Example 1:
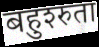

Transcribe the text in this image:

बहुश्रुता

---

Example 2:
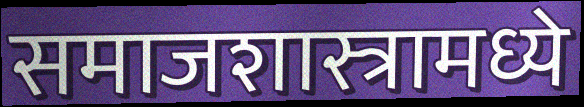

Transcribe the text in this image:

समाजशास्त्रामध्ये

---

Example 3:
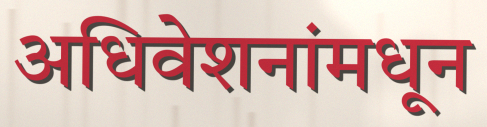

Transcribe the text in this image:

अधिवेशनांमधून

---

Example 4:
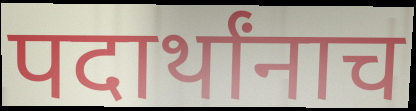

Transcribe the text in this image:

पदार्थांनाच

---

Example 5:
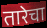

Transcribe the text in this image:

तारेचा